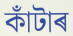
কাঁটাৰ